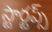
స్టార్టప్స్